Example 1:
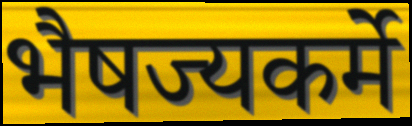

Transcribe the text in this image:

भैषज्यकर्मे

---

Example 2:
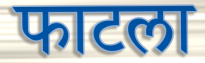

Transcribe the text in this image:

फाटला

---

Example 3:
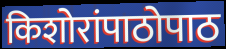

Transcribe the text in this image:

किशोरांपाठोपाठ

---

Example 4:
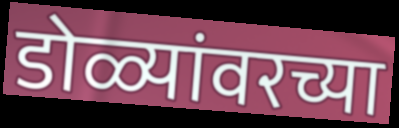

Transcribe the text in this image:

डोळ्यांवरच्या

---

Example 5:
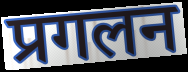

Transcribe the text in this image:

प्रगलन